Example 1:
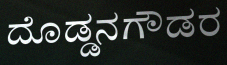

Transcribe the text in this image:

ದೊಡ್ಡನಗೌಡರ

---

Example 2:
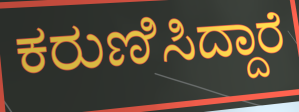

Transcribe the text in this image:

ಕರುಣಿಸಿದ್ದಾರೆ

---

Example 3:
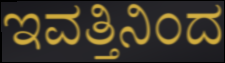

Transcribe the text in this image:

ಇವತ್ತಿನಿಂದ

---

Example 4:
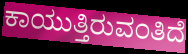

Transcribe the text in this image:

ಕಾಯುತ್ತಿರುವಂತಿದೆ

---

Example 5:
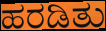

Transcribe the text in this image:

ಹರಡಿತು